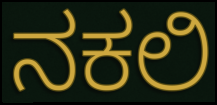
ನಕಲಿ